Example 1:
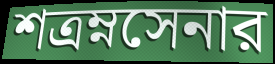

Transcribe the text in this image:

শত্রম্নসেনার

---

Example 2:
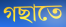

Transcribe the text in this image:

গছাতে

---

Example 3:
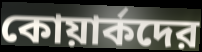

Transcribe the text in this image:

কোয়ার্কদের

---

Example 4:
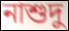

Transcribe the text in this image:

নাশুদু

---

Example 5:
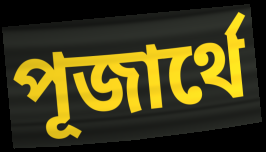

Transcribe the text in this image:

পূজার্থে